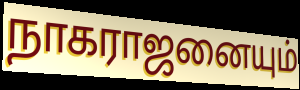
நாகராஜனையும்